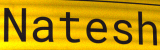
Natesh